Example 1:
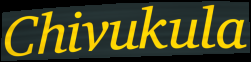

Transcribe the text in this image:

Chivukula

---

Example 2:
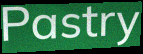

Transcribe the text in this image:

Pastry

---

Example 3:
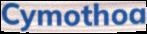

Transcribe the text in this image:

Cymothoa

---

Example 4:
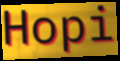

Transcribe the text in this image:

Hopi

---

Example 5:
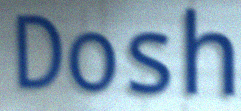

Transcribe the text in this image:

Dosh